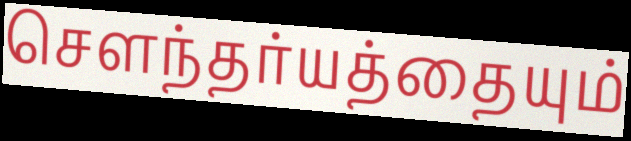
சௌந்தர்யத்தையும்